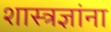
शास्त्रज्ञांना